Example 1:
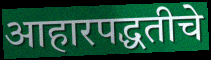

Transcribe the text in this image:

आहारपद्धतीचे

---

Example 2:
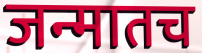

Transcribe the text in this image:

जन्मातच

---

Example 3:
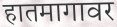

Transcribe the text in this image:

हातमागावर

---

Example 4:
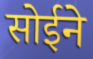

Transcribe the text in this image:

सोईने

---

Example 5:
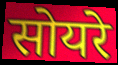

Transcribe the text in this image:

सोयरे